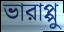
ভারাপ্পু